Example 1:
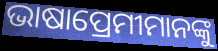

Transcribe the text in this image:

ଭାଷାପ୍ରେମୀମାନଙ୍କୁ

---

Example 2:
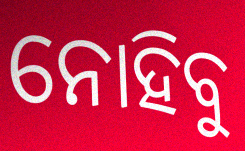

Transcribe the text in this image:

ନୋହିବୁ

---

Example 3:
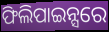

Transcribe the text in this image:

ଫିଲିପାଇନ୍ସରେ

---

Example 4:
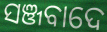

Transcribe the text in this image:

ସଞ୍ଜବାଦେ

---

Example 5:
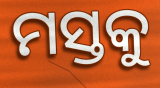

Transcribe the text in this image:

ମସ୍ତକୁ